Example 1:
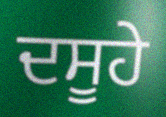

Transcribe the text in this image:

ਦਸੂਹੇ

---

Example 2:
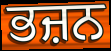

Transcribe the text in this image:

ਭਜ਼ਨ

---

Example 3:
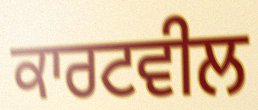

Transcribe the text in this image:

ਕਾਰਟਵੀਲ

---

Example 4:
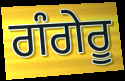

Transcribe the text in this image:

ਗੰਗੇਰੂ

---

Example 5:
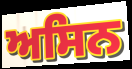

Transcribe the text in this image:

ਅਸਿਨ